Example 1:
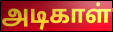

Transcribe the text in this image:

அடிகாள்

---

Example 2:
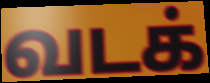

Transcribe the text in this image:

வடக்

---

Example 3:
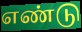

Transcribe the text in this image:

எண்டு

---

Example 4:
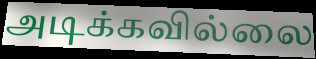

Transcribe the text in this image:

அடிக்கவில்லை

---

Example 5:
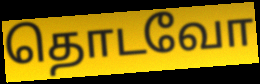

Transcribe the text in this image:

தொடவோ